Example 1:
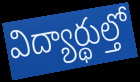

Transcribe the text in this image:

విద్యార్థుల్తో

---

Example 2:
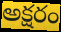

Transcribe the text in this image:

అక్షరం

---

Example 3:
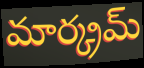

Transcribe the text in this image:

మార్క్రమ్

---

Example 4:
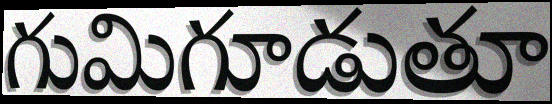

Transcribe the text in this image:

గుమిగూడుతూ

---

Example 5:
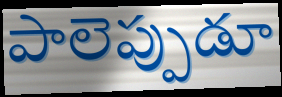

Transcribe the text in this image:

పాలెప్పుడూ